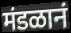
मंडळानं